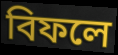
বিফলে